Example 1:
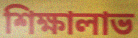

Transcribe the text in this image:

শিক্ষালাভ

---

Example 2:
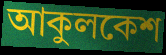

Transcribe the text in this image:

আকুলকেশ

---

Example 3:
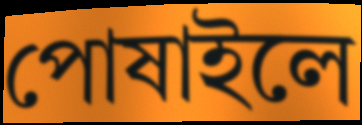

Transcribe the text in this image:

পোষাইলে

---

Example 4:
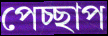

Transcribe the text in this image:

পেচ্ছাপ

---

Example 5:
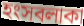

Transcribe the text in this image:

হংসবলাকা